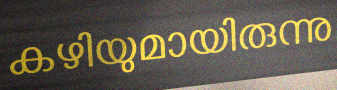
കഴിയുമായിരുന്നു